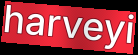
harveyi